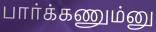
பார்க்கணும்னு